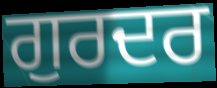
ਗੁਰਦਰ